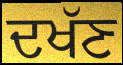
ਦਖੱਣ